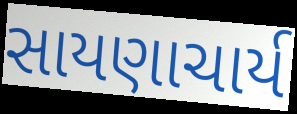
સાયણાચાર્ય